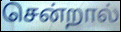
சென்றால்